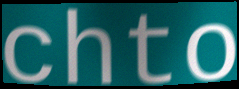
chto